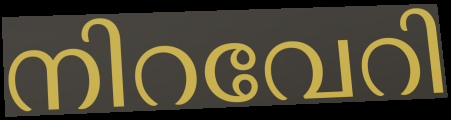
നിറവേറി